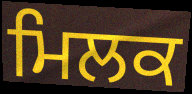
ਮਿਲਕ